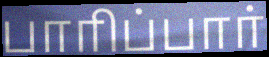
பாரிப்பார்